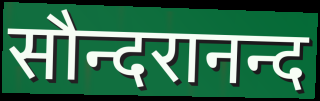
सौन्दरानन्द